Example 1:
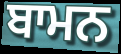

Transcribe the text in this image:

ਬਾਮਨ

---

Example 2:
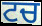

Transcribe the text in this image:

ਟਚ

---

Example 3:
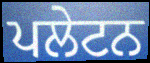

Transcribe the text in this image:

ਪਲੇਟਨ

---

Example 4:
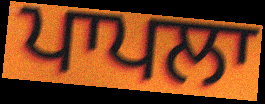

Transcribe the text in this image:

ਪਾਪਲਾ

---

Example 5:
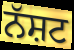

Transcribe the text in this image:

ਨੱਸ਼ਟ